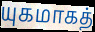
யுகமாகத்